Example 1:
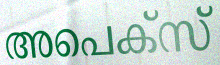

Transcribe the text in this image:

അപെക്സ്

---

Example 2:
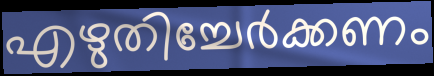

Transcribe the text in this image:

എഴുതിച്ചേർക്കണം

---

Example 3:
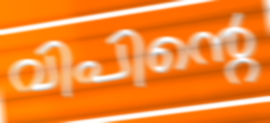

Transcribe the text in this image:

വിപിന്റെ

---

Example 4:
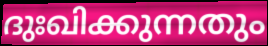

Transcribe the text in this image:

ദുഃഖിക്കുന്നതും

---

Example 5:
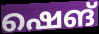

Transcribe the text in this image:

ഷെങ്